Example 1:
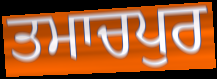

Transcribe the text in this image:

ਤਮਾਚਪੁਰ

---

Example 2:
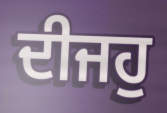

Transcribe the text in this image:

ਦੀਜਹੁ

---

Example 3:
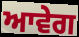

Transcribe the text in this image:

ਆਵੇਗ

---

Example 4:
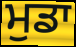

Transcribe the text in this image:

ਮੁਡਾ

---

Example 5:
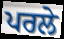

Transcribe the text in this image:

ਪਰਲੇ